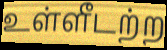
உள்ளீடற்ற